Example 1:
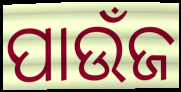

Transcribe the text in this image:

ପାଉଁଜ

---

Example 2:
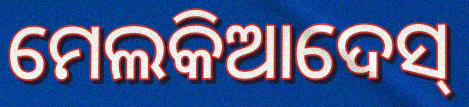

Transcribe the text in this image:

ମେଲକିଆଦେସ୍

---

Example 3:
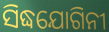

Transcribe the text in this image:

ସିଦ୍ଧଯୋଗିନୀ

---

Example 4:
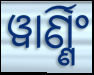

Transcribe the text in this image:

ୱାର୍ଣ୍ଣିଂ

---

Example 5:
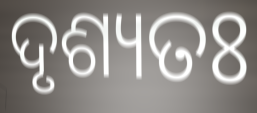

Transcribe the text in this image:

ଦୃଶ୍ୟତଃ